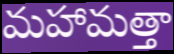
మహామత్తా